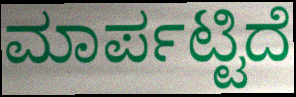
ಮಾರ್ಪಟ್ಟಿದೆ